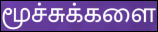
மூச்சுக்களை